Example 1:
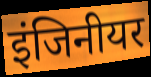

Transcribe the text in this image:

इंजिनीयर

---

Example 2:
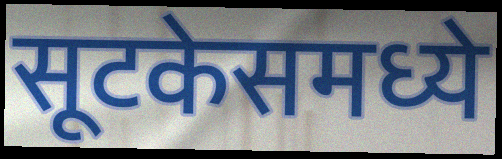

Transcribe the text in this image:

सूटकेसमध्ये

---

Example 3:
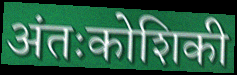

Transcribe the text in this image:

अंतःकोशिकी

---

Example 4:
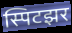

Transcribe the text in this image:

स्पिटझर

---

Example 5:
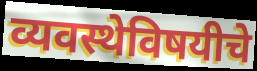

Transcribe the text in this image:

व्यवस्थेविषयीचे